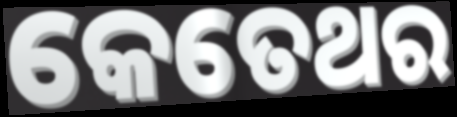
କେତେଥର